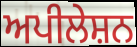
ਅਪੀਲੇਸ਼ਨ